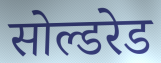
सोल्डरेड